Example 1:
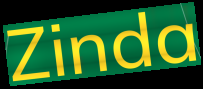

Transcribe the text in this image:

Zinda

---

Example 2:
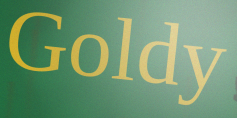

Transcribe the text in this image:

Goldy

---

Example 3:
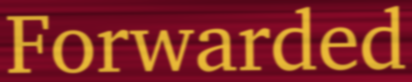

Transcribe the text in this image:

Forwarded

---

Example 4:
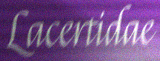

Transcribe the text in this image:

Lacertidae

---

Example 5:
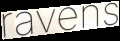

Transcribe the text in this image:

ravens